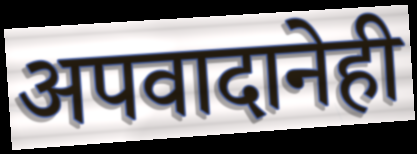
अपवादानेही